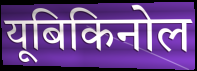
यूबिकिनोल